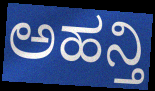
ಅಹನ್ತಿ